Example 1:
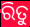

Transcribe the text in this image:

ରିତୁ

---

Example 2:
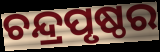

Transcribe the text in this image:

ଚନ୍ଦ୍ରପୃଷ୍ଠର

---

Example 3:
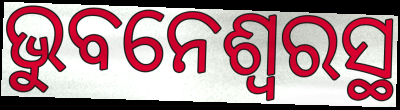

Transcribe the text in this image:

ଭୁବନେଶ୍ଵରସ୍ଥ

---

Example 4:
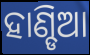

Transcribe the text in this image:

ହାଣ୍ଡିଆ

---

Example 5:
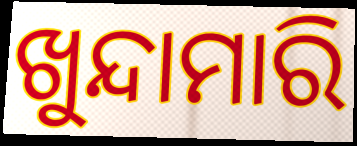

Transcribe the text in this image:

ଖୁନ୍ଦାମାରି